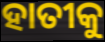
ହାତୀକୁ